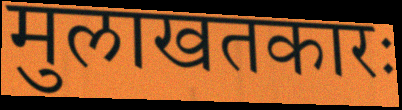
मुलाखतकारः